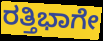
ರತ್ತಿಭಾಗೇ